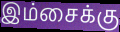
இம்சைக்கு